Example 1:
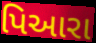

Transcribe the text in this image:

પિઆરા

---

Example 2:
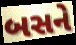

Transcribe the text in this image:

બસને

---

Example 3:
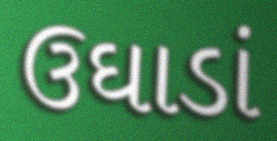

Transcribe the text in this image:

ઉઘાડાં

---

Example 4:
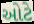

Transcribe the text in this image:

ઓટે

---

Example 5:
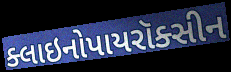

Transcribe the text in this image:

ક્લાઇનોપાયરૉક્સીન